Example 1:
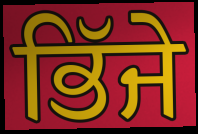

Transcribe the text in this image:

ਭਿੱਜੇ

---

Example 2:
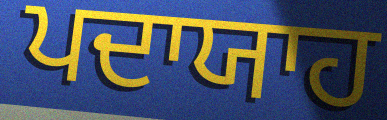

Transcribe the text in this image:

ਪਦਾਯਾਹ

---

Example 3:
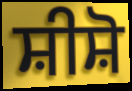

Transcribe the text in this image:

ਸ਼ੀਸ਼ੋ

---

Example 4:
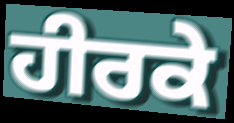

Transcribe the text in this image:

ਹੀਰਕੇ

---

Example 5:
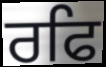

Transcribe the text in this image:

ਰਫਿ